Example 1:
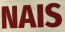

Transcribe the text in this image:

NAIS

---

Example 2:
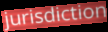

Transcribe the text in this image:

jurisdiction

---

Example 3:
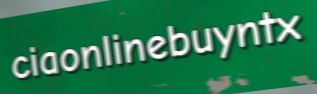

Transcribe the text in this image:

ciaonlinebuyntx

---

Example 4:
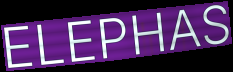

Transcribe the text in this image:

ELEPHAS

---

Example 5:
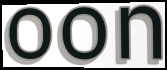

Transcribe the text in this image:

oon